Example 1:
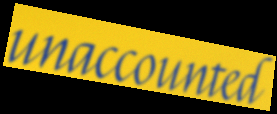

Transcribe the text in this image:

unaccounted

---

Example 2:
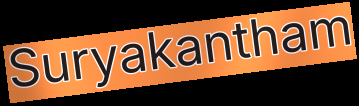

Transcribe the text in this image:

Suryakantham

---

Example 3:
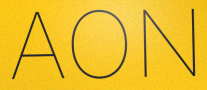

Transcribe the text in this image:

AON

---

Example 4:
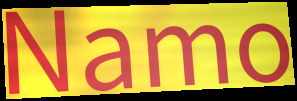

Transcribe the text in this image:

Namo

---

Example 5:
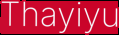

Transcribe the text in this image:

Thayiyu